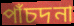
পাঁচদনা